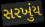
સરખુંય